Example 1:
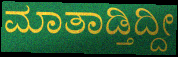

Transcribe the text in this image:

ಮಾತಾಡ್ತಿದ್ದೀ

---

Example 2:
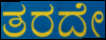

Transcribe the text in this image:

ತರದೇ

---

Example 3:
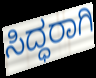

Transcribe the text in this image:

ಸಿದ್ಧರಾಗಿ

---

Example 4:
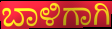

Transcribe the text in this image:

ಬಾಳಿಗಾಗಿ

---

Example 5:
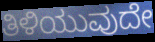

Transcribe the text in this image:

ತಿಳಿಯುವುದೇ